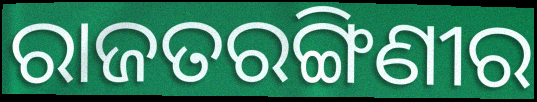
ରାଜତରଙ୍ଗିଣୀର